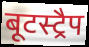
बूटस्ट्रैप